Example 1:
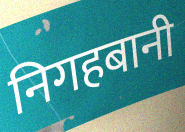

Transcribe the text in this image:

निगहबानी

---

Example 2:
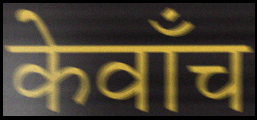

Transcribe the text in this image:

केवाँच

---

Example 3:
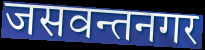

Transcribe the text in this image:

जसवन्तनगर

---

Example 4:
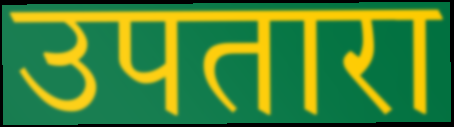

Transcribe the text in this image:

उपतारा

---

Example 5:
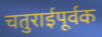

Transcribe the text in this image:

चतुराईपूर्वक